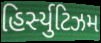
હિર્સ્યુટિઝમ